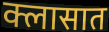
क्लासात